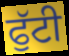
ਫੁੱਟੀ